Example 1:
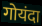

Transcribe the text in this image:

गोयंदा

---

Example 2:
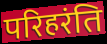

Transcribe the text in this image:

परिहरंति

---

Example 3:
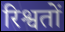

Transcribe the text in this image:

रिश्वतों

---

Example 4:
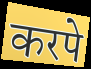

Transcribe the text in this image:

करपे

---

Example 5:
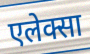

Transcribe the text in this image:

एलेक्सा